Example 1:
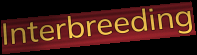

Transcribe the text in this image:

Interbreeding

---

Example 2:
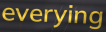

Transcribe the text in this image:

everying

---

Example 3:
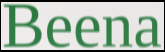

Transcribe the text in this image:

Beena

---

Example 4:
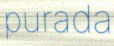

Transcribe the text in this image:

purada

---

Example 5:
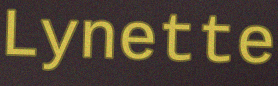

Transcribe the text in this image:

Lynette